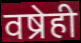
वष्रेही